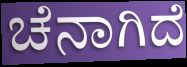
ಚೆನಾಗಿದೆ